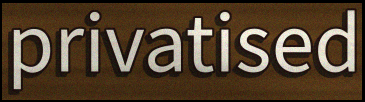
privatised